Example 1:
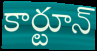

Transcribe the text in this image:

కార్టూన్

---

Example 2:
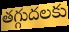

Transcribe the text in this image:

తగ్గుదలకు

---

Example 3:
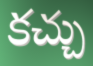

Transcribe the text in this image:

కచ్చు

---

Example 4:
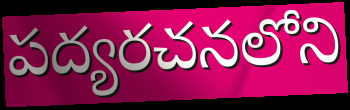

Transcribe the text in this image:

పద్యరచనలోని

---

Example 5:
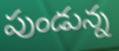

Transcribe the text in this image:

పుండున్న